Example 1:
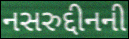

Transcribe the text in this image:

નસરુદ્દીનની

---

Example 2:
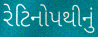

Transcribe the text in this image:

રેટિનોપથીનું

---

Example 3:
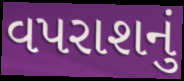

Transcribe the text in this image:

વપરાશનું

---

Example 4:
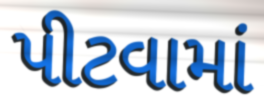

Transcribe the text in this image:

પીટવામાં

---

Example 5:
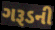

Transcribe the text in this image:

ગરૂડની